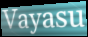
Vayasu